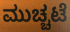
ಮುಚ್ಚಟೆ